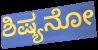
ಶಿಷ್ಯನೋ